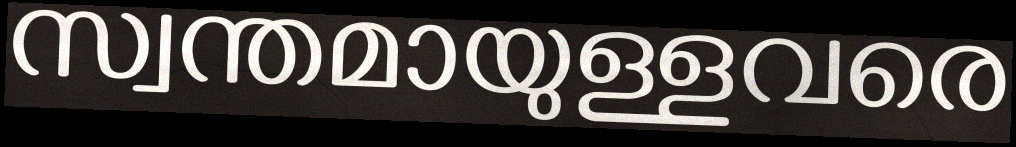
സ്വന്തമായുള്ളവരെ